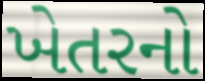
ખેતરનો